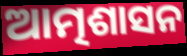
ଆତ୍ମଶାସନ